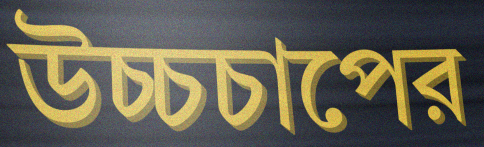
উচ্চচাপের